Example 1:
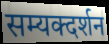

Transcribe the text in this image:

सम्यक्दर्शन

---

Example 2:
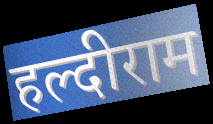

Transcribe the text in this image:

हल्दीराम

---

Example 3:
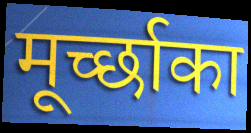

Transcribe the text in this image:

मूर्च्छाका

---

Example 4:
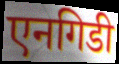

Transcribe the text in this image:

एनगिडी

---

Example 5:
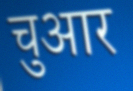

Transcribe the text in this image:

चुआर